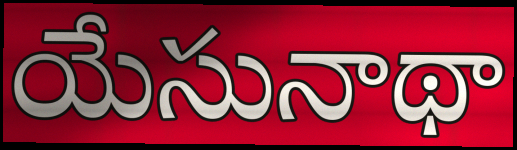
యేసునాథా